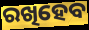
ରଖିହେବ